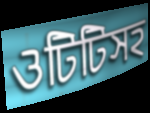
ওটিটিসহ